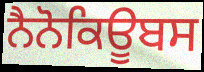
ਨੈਨੋਕਿਊਬਸ